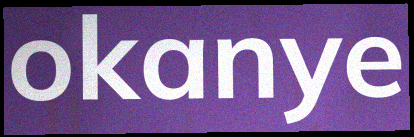
okanye